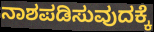
ನಾಶಪಡಿಸುವುದಕ್ಕೆ